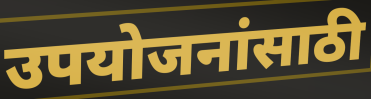
उपयोजनांसाठी